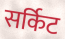
सर्किट